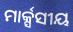
ମାର୍କ୍ସସୀୟ